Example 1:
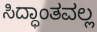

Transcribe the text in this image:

ಸಿದ್ಧಾಂತವಲ್ಲ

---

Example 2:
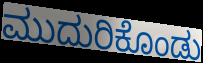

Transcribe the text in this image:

ಮುದುರಿಕೊಂಡು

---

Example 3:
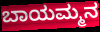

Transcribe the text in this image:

ಬಾಯಮ್ಮನ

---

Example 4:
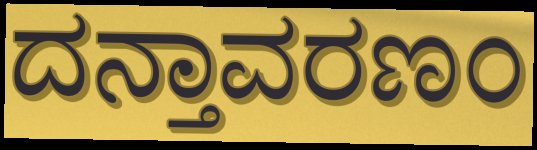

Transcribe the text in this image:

ದನ್ತಾವರಣಂ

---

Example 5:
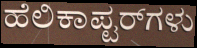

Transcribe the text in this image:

ಹೆಲಿಕಾಪ್ಟರ್‌ಗಳು